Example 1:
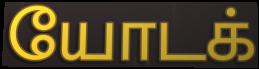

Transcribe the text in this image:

யோடக்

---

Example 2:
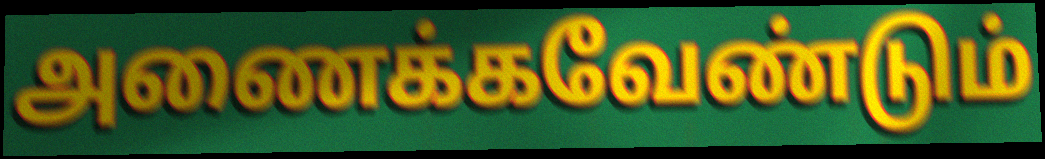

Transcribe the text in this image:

அணைக்கவேண்டும்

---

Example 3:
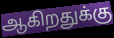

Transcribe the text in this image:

ஆகிறதுக்கு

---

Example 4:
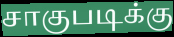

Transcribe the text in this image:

சாகுபடிக்கு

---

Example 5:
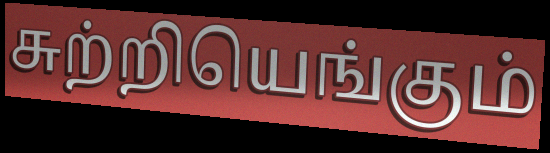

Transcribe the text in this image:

சுற்றியெங்கும்